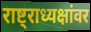
राष्ट्राध्यक्षांवर